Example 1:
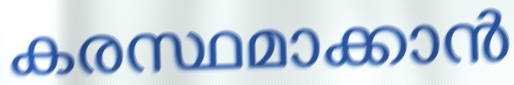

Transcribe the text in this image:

കരസ്ഥമാക്കാൻ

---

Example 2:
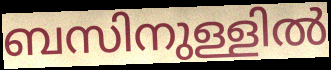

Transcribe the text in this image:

ബസിനുള്ളിൽ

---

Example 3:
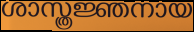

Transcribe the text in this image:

ശാസ്ത്രജ്ഞനായ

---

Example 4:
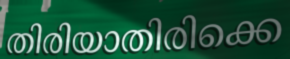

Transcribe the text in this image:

തിരിയാതിരിക്കെ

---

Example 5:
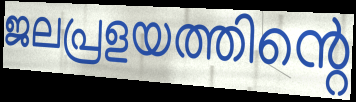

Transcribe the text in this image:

ജലപ്രളയത്തിന്റെ